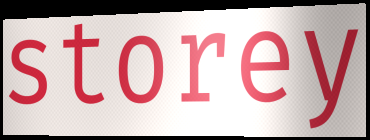
storey